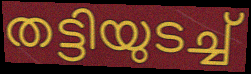
തട്ടിയുടച്ച്